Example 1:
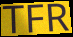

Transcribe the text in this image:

TFR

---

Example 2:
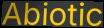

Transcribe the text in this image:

Abiotic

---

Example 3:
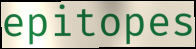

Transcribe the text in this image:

epitopes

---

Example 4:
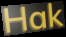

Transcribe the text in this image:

Hak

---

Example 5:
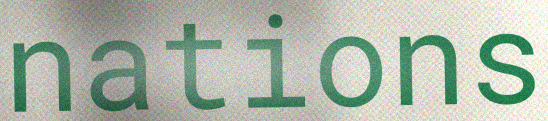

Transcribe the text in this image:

nations